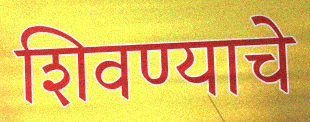
शिवण्याचे